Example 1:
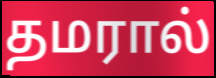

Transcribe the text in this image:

தமரால்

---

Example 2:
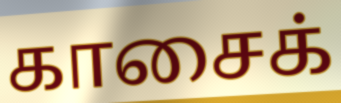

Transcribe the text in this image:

காசைக்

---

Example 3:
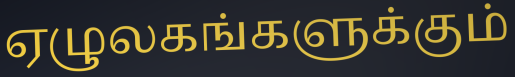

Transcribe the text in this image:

ஏழுலகங்களுக்கும்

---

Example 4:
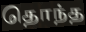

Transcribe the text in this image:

தொந்த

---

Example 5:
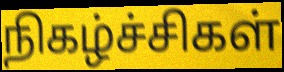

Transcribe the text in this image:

நிகழ்ச்சிகள்